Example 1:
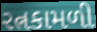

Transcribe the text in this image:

રત્નકામળી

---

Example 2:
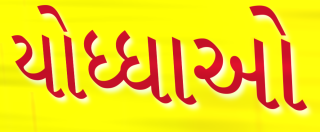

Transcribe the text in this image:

યોધ્ધાઓ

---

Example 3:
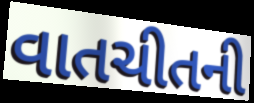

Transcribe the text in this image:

વાતચીતની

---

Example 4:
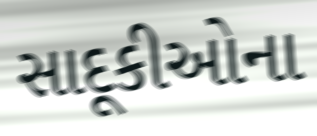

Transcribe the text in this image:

સાદૂકીઓના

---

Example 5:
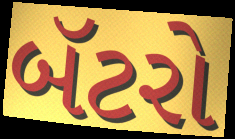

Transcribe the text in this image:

બૅટરો